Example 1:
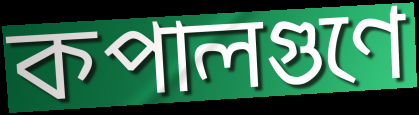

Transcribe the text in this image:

কপালগুণে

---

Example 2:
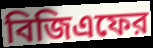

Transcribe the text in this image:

বিজিএফের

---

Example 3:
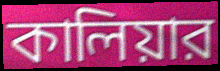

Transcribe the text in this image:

কালিয়ার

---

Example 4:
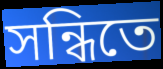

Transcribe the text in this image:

সন্ধিতে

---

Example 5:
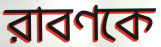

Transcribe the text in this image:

রাবণকে